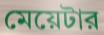
মেয়েটার